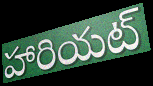
హారియట్